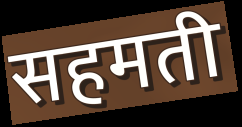
सहमती